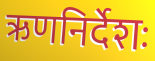
ऋणनिर्देशः